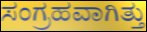
ಸಂಗ್ರಹವಾಗಿತ್ತು